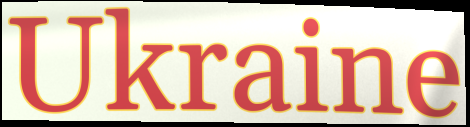
Ukraine